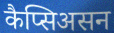
कैप्सिअसन